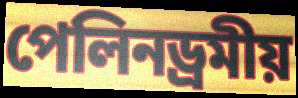
পেলিনড্ৰমীয়